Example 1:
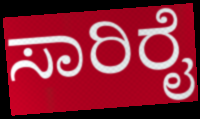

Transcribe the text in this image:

ಸಾರಿರೈ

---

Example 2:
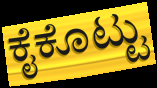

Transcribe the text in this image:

ಕೈಕೊಟ್ಟು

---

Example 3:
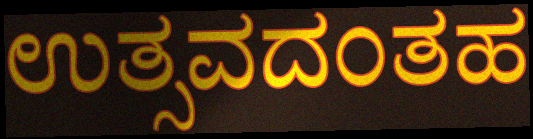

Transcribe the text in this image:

ಉತ್ಸವದಂತಹ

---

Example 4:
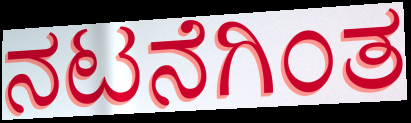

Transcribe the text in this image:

ನಟನೆಗಿಂತ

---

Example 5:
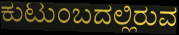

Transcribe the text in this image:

ಕುಟುಂಬದಲ್ಲಿರುವ